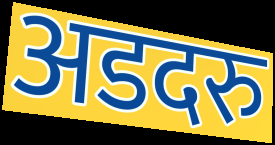
अडदरु